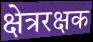
क्षेत्ररक्षक